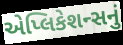
એપ્લિકેશન્સનું